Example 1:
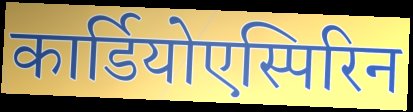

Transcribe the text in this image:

कार्डियोएस्पिरिन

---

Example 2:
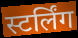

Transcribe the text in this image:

स्‍टर्लिंग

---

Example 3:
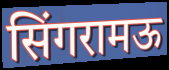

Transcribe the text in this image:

सिंगरामऊ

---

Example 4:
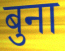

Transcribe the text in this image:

बुना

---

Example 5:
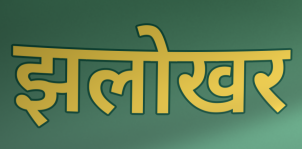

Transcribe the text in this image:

झलोखर